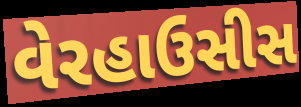
વેરહાઉસીસ